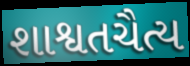
શાશ્વતચૈત્ય